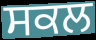
ਸਕਲ